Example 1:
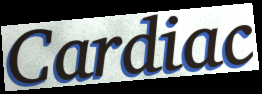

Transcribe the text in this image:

Cardiac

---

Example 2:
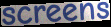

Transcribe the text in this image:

screens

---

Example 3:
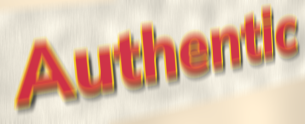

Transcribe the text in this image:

Authentic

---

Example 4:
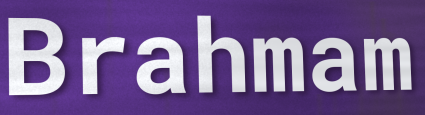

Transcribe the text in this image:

Brahmam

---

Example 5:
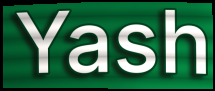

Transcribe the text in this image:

Yash